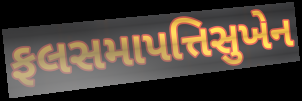
ફલસમાપત્તિસુખેન